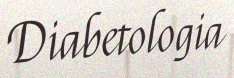
Diabetologia